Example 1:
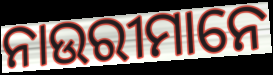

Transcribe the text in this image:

ନାଉରୀମାନେ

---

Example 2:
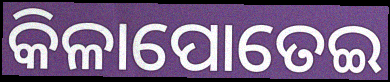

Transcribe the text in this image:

କିଳାପୋତେଇ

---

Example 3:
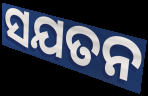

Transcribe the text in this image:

ସଯତନ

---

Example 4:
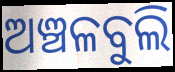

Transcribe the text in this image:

ଅଞ୍ଚଳବୁଲି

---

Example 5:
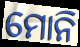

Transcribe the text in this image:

ମୋନି